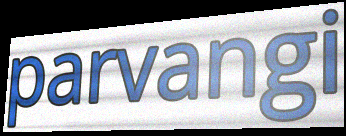
parvangi